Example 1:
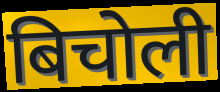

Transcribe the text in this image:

बिचोली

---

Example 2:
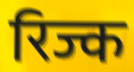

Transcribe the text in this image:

रिज्क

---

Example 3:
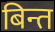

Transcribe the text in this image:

बिन्त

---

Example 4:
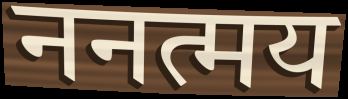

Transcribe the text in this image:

ननत्मय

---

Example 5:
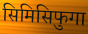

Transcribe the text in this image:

सिमिसिफुगा